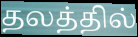
தலத்தில்